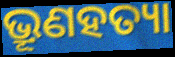
ଭ୍ରୂଣହତ୍ୟା